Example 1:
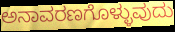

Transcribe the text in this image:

ಅನಾವರಣಗೊಳ್ಳುವುದು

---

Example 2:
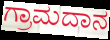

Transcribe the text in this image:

ಗ್ರಾಮದಾನ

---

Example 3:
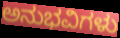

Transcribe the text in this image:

ಅನುಭವಿಗಳು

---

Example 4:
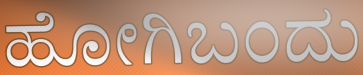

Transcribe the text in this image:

ಹೋಗಿಬಂದು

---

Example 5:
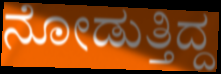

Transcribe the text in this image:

ನೋಡುತ್ತಿದ್ದ